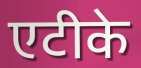
एटीके